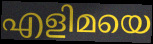
എളിമയെ